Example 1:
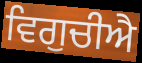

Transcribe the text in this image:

ਵਿਗੁਚੀਐ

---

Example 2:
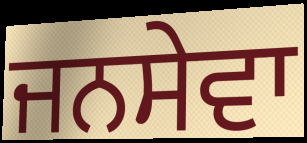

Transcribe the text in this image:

ਜਨਸੇਵਾ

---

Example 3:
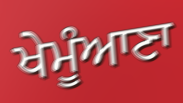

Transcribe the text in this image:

ਖੇਮੂੰਆਣਾ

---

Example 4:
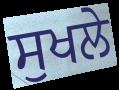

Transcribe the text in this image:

ਸੁਖਲੇ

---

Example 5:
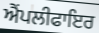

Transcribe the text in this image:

ਐਂਪਲੀਫਾਇਰ